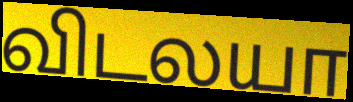
விடலயா